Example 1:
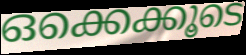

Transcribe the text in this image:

ഒക്കെക്കൂടെ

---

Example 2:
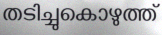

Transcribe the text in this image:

തടിച്ചുകൊഴുത്ത്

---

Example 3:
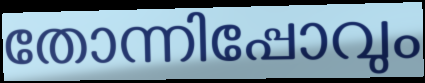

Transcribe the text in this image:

തോന്നിപ്പോവും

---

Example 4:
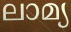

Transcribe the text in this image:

ലാമ്യ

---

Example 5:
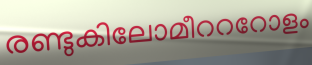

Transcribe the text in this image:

രണ്ടുകിലോമീറററോളം